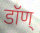
डॉण्